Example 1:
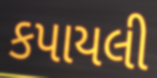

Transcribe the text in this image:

કપાયલી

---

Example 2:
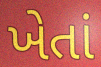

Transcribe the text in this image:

ખેતાં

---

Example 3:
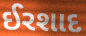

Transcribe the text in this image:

ઈરશાદ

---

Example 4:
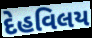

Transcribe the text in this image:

દેહવિલય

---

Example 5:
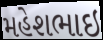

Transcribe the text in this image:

મહેશભાઇ